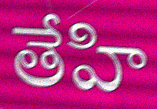
తేహి